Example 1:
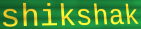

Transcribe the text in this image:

shikshak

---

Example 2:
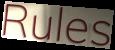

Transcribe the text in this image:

Rules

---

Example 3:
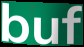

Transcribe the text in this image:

buf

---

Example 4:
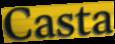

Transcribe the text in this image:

Casta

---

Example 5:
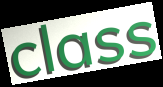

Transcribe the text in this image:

class